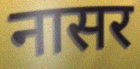
नासर